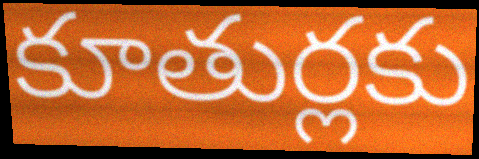
కూతుర్లకు